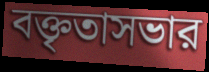
বক্তৃতাসভার